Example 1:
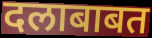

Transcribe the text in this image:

दलाबाबत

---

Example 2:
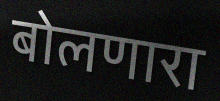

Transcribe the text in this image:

बोलणारा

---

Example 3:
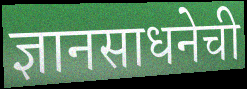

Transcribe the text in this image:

ज्ञानसाधनेची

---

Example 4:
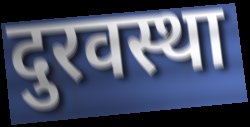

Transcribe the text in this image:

दुरवस्था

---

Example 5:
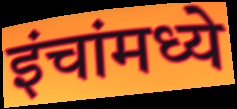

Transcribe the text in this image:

इंचांमध्ये